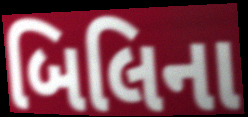
બિલિના